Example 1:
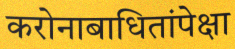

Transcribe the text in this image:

करोनाबाधितांपेक्षा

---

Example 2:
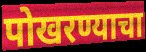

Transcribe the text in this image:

पोखरण्याचा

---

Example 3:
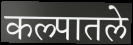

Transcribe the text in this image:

कल्पातले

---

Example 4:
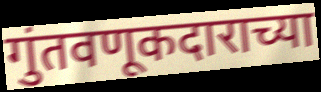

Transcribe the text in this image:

गुंतवणूकदाराच्या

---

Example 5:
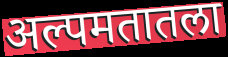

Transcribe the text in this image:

अल्पमतातला